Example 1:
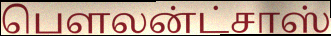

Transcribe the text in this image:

பௌலன்ட்சாஸ்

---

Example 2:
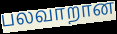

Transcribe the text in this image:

பலவாறான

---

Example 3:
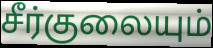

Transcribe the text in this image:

சீர்குலையும்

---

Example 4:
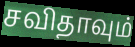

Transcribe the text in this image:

சவிதாவும்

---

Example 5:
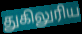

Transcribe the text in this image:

துகிலுரிய